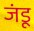
जंडू